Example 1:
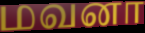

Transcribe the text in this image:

மவனா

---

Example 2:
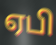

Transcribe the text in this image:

ஏபி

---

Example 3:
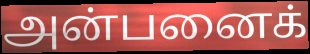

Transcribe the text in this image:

அன்பனைக்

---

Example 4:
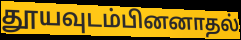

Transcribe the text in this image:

தூயவுடம்பினனாதல்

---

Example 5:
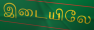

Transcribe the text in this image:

இடையிலே